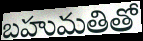
బహుమతితో